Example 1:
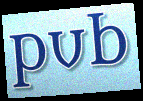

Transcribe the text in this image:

pub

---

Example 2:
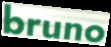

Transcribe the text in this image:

bruno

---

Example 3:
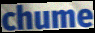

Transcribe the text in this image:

chume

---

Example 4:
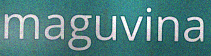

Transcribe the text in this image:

maguvina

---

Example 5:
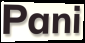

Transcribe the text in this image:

Pani